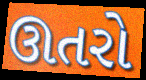
ઊતરો